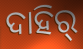
ଦାହିର୍